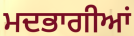
ਮਦਭਾਗੀਆਂ